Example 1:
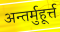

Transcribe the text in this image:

अन्तर्मुहूर्त्त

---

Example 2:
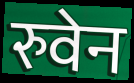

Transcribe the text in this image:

रुवेन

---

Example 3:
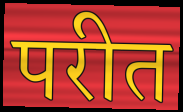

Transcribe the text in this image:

परीत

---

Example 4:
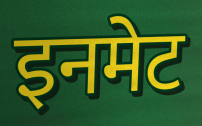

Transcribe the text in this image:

इनमेट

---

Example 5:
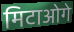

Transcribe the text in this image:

मिटाओगे